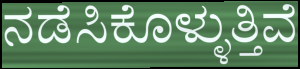
ನಡೆಸಿಕೊಳ್ಳುತ್ತಿವೆ